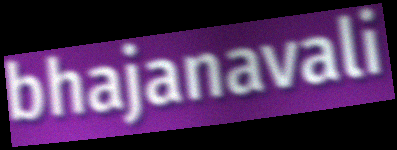
bhajanavali